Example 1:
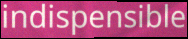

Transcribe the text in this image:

indispensible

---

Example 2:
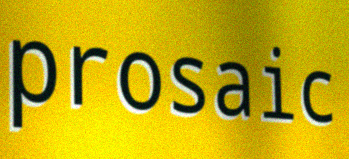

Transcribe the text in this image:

prosaic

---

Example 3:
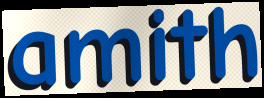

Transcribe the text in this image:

amith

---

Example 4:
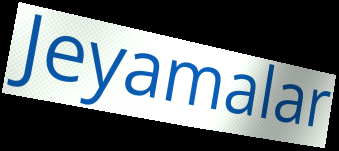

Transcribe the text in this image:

Jeyamalar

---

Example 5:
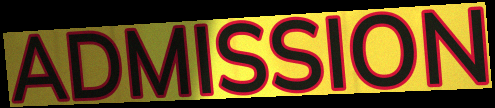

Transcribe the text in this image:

ADMISSION